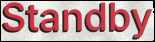
Standby